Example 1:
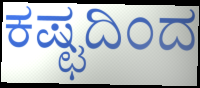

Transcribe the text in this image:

ಕಷ್ಟದಿಂದ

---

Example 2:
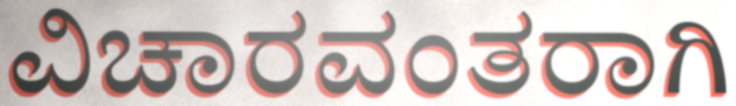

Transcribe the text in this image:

ವಿಚಾರವಂತರಾಗಿ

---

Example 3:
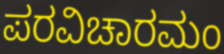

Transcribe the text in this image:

ಪರವಿಚಾರಮಂ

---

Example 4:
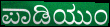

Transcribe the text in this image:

ಪಾಡಿಯುಂ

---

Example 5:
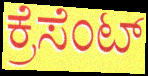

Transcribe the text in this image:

ಕ್ರೆಸೆಂಟ್